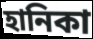
হানিকা